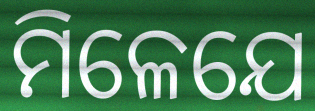
ମିଳେଯେ